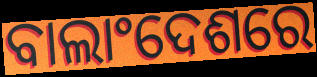
ବାଲାଂଦେଶରେ